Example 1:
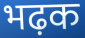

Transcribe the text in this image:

भढ़क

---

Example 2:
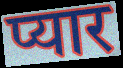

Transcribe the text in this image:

प्‍यार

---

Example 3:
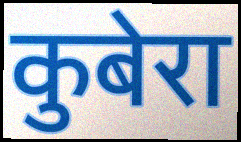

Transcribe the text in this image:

कुबेरा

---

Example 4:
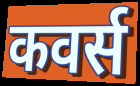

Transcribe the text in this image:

कवर्स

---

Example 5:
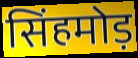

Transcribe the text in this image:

सिंहमोड़